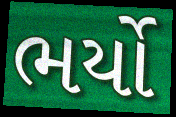
ભર્યો